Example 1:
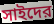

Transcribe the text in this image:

সাইদের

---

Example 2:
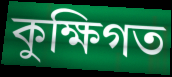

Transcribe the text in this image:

কুক্ষিগত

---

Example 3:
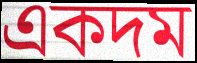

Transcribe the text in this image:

একদম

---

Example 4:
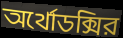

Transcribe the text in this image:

অর্থোডক্সির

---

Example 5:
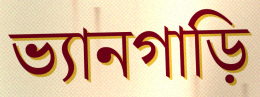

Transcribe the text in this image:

ভ্যানগাড়ি